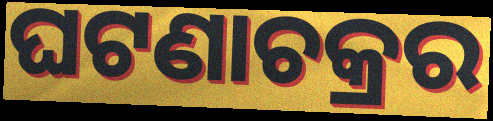
ଘଟଣାଚକ୍ରର